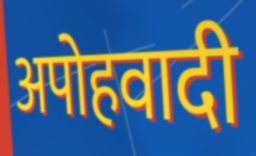
अपोहवादी